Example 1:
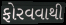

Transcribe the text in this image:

ફોરવવાથી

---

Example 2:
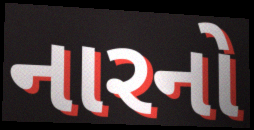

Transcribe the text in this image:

નારનો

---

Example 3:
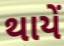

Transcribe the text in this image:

થાયેં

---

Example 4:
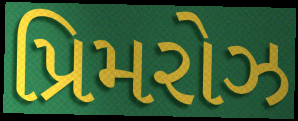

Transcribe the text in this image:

પ્રિમરોઝ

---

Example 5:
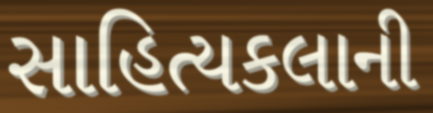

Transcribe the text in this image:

સાહિત્યકલાની